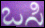
ಒಸಿ